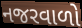
નજરવાળો